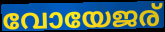
വോയേജര്